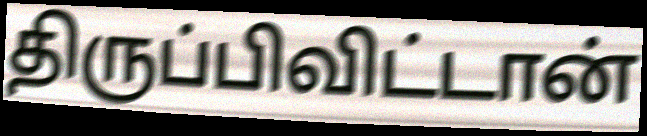
திருப்பிவிட்டான்